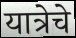
यात्रेचे